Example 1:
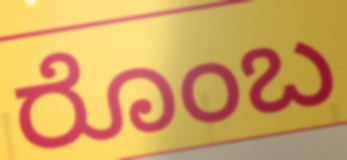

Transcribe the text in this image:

ರೊಂಬ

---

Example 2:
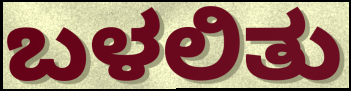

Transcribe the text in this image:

ಬಳಲಿತು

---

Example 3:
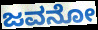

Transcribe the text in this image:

ಜವನೋ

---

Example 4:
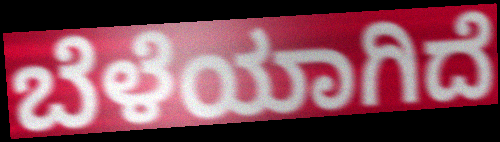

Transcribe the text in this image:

ಬೆಳೆಯಾಗಿದೆ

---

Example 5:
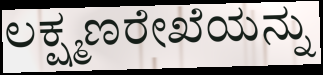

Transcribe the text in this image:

ಲಕ್ಷ್ಮಣರೇಖೆಯನ್ನು